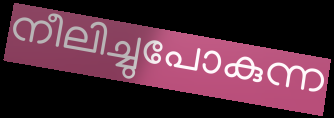
നീലിച്ചുപോകുന്ന